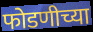
फोडणीच्या